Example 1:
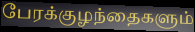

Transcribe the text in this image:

பேரக்குழந்தைகளும்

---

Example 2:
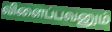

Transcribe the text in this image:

விளைப்பவனும்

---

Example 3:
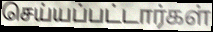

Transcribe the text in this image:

செய்யப்பட்டார்கள்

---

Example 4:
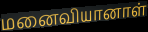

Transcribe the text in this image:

மனைவியானாள்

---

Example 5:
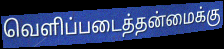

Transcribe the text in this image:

வெளிப்படைத்தன்மைக்கு